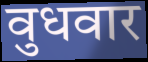
वुधवार